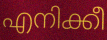
എനിക്കീ